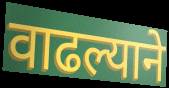
वाढल्याने